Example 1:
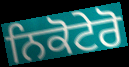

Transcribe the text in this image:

ਨਿਕੋਟੇਰੋ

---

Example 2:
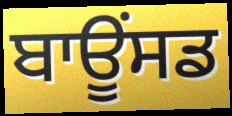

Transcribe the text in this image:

ਬਾਊਂਸਡ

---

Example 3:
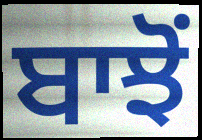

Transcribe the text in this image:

ਬਾਝੋਂ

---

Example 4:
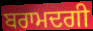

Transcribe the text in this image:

ਬਰਾਮਦਗੀ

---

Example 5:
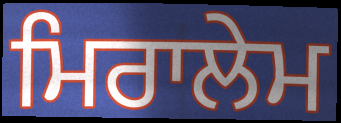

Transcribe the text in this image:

ਮਿਰਾਲੇਮ